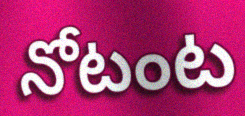
నోటంట